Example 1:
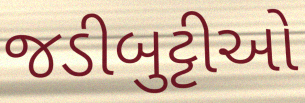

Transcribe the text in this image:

જડીબુટ્ટીઓ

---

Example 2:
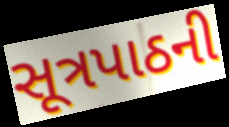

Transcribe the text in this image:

સૂત્રપાઠની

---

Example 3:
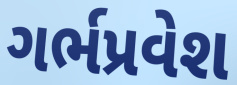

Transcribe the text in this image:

ગર્ભપ્રવેશ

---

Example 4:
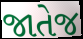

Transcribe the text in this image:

જાતેજ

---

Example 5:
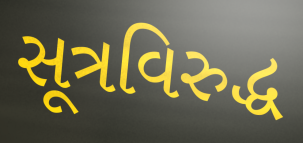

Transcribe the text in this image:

સૂત્રવિરુદ્ધ